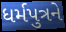
ધર્મપુત્રને